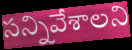
సన్నివేశాలని